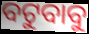
ବଟୁବାବୁ